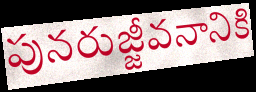
పునరుజ్జీవనానికి